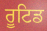
ਰੂਟਿਡ